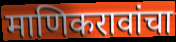
माणिकरावांचा